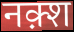
नक़्श